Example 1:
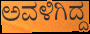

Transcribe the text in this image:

ಅವಳಿಗಿದ್ದ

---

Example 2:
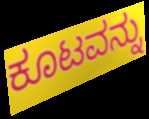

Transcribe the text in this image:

ಕೂಟವನ್ನು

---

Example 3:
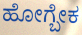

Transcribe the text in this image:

ಹೋಗ್ಬೇಕ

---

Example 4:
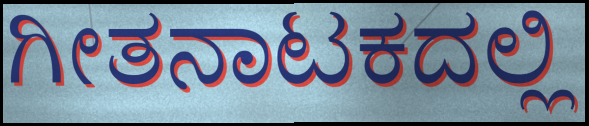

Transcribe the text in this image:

ಗೀತನಾಟಕದಲ್ಲಿ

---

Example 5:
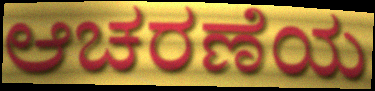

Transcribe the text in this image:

ಆಚರಣೆಯ